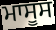
ਮਾਸੂਸ